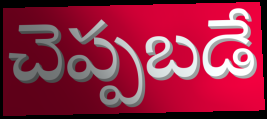
చెప్పబడే